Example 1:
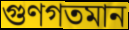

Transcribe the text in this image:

গুণগতমান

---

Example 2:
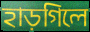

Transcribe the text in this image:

হাড়গিলে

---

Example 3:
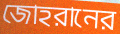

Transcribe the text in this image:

জোহরানের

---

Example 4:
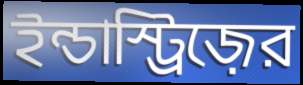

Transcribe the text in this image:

ইন্ডাস্ট্রিজ়ের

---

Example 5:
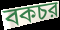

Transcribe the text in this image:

বকচর